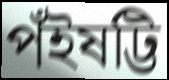
পঁইষট্টি